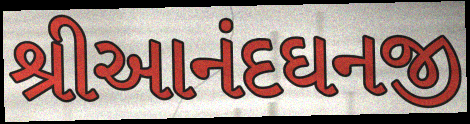
શ્રીઆનંદઘનજી